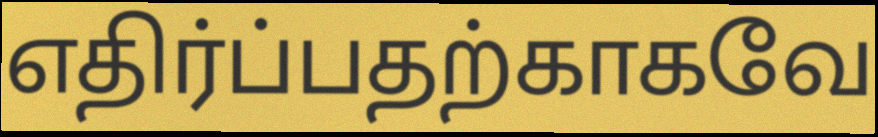
எதிர்ப்பதற்காகவே